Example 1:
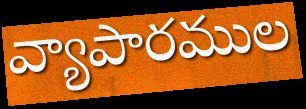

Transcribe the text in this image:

వ్యాపారముల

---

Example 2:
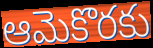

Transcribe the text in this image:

ఆమెకొరకు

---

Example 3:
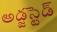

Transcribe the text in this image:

అడ్జస్టెడ్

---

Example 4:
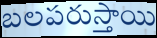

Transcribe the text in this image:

బలపరుస్తాయి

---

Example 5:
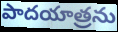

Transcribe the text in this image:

పాదయాత్రను